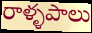
రాళ్ళపాలు